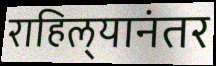
राहिल्यानंतर